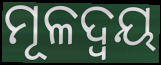
ମୂଳଦ୍ୱୟ